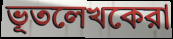
ভূতলেখকেরা